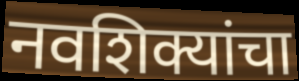
नवशिक्यांचा